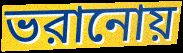
ভরানোয়